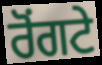
ਰੋੰਗਟੇ